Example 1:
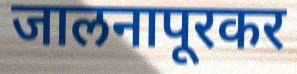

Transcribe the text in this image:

जालनापूरकर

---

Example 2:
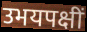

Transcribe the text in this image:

उभयपक्षीं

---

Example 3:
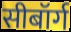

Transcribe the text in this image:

सीबॉर्ग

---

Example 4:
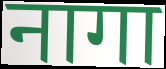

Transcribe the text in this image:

नागा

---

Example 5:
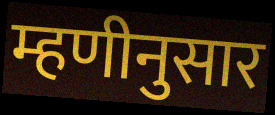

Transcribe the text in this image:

म्हणीनुसार